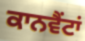
ਕਾਨਵੈਂਟਾਂ